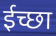
ईच्छा